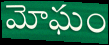
మోఘం